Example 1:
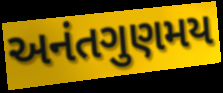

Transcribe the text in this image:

અનંતગુણમય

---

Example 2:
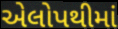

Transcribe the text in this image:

એલોપથીમાં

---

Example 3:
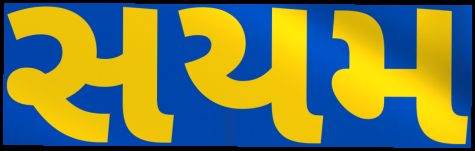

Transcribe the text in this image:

સયમ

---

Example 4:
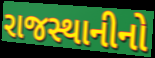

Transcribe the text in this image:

રાજસ્થાનીનો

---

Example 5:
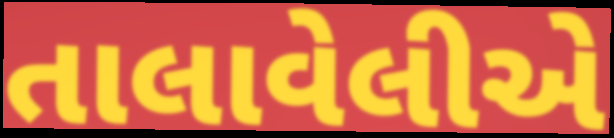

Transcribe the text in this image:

તાલાવેલીએ